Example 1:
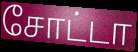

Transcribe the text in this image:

சோட்டா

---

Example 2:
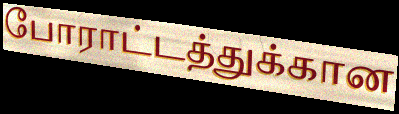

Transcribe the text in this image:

போராட்டத்துக்கான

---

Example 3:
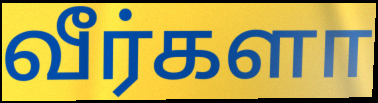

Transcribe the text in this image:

வீர்களா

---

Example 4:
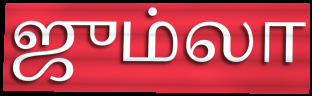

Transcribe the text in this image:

ஜும்லா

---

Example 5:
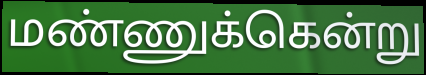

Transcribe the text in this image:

மண்ணுக்கென்று